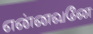
என்னவனே